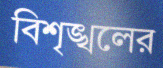
বিশৃঙ্খলের